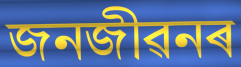
জনজীৱনৰ